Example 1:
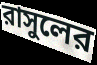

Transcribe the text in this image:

রাসুলের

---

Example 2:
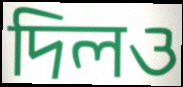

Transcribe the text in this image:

দিলও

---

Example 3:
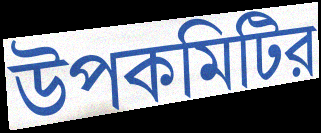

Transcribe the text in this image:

উপকমিটির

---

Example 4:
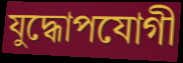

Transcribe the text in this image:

যুদ্ধোপযোগী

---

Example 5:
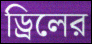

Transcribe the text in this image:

ড্রিলের